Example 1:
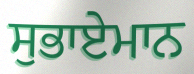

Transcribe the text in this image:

ਸੁਭਾਏਮਾਨ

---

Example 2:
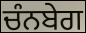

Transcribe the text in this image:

ਚੰਨਬੇਗ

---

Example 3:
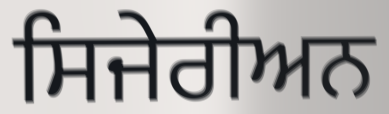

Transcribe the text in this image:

ਸਿਜੇਰੀਅਨ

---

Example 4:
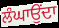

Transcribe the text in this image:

ਲੰਘਾਉਂਦਾ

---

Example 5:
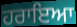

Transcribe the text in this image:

ਹਰਾਇਆ